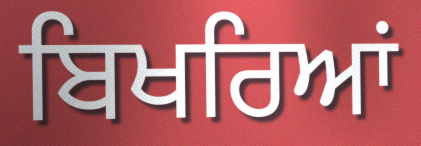
ਬਿਖਰਿਆਂ